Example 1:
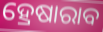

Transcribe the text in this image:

ହ୍ରେଷାରାବ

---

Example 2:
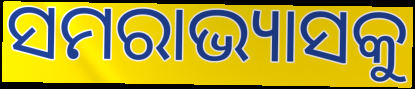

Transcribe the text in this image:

ସମରାଭ୍ୟାସକୁ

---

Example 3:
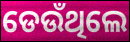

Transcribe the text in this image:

ଡେଉଁଥିଲେ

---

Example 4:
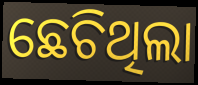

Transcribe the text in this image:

ଛେଚିଥିଲା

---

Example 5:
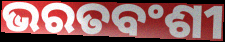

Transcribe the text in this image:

ଭରତବଂଶୀ